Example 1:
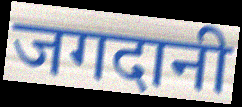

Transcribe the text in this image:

जगदानी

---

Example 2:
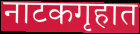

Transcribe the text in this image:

नाटकगृहात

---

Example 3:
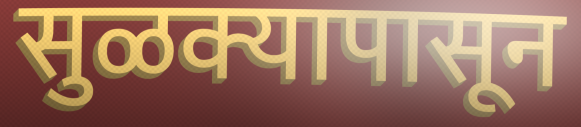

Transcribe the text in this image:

सुळक्यापासून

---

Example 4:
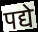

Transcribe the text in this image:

पद्ये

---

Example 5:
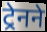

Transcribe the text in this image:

ट्रेनने